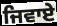
ਜਿਵਾਏ